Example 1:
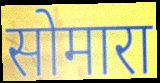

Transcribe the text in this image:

सोमारा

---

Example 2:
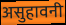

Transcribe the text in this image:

असुहावनी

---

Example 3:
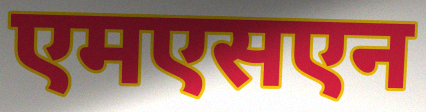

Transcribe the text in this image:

एमएसएन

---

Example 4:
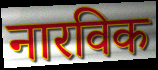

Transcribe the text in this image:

नारविक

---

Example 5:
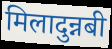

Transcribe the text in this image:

मिलादुन्नबी